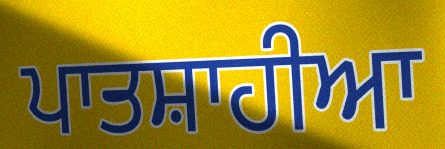
ਪਾਤਸ਼ਾਹੀਆ